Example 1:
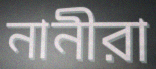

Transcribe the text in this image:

নানীরা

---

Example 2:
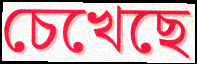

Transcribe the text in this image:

চেখেছে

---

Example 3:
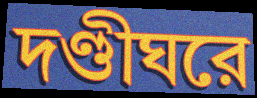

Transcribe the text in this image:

দণ্ডীঘরে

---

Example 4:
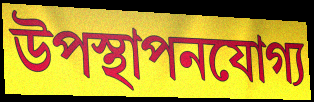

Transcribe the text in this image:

উপস্থাপনযোগ্য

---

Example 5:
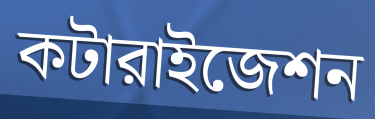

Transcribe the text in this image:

কটারাইজেশন